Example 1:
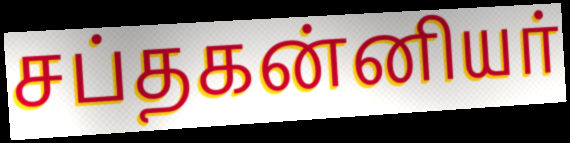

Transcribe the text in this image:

சப்தகன்னியர்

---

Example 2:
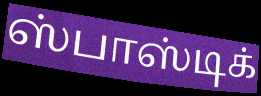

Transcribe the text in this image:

ஸ்பாஸ்டிக்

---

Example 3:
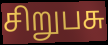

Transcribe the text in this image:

சிறுபசு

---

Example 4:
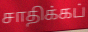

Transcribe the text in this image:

சாதிக்கப்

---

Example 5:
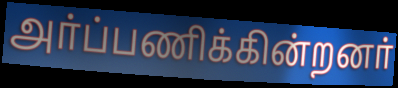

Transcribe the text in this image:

அர்ப்பணிக்கின்றனர்